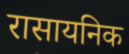
रासायनिक